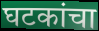
घटकांचा